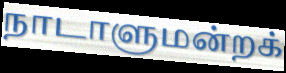
நாடாளுமன்றக்